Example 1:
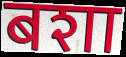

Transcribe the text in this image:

बशा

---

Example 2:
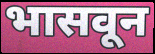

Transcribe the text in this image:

भासवून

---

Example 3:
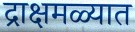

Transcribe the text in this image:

द्राक्षमळ्यात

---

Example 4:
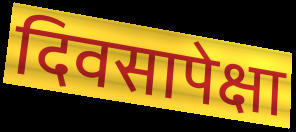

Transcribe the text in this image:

दिवसापेक्षा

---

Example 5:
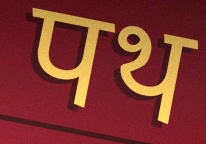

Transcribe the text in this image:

पथ